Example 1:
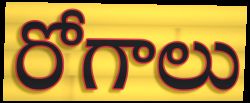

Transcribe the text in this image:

రోగాలు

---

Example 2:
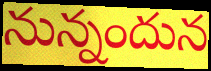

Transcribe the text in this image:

నున్నందున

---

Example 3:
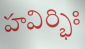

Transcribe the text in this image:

హవిర్భిః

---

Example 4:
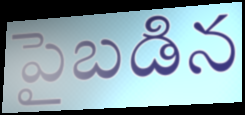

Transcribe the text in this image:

పైబడిన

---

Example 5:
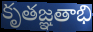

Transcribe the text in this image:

కృతజ్ఞతాభి